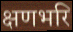
क्षणभरि